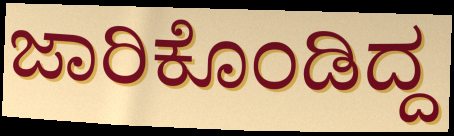
ಜಾರಿಕೊಂಡಿದ್ದ